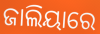
ଜାଲିୟାରେ